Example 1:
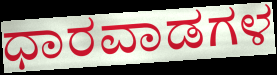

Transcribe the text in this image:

ಧಾರವಾಡಗಳ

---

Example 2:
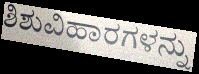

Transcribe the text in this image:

ಶಿಶುವಿಹಾರಗಳನ್ನು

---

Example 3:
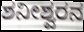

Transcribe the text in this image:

ಶನೀಶ್ವರನ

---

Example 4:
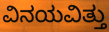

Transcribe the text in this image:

ವಿನಯವಿತ್ತು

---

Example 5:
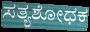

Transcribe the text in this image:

ಸತ್ಯಶೋಧಕ